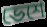
ভেশে